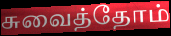
சுவைத்தோம்